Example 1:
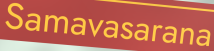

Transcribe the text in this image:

Samavasarana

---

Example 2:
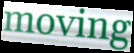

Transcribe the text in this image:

moving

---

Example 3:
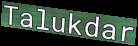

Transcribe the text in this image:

Talukdar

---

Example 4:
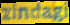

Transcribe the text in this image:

zindagi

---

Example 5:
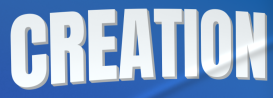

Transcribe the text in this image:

CREATION